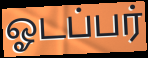
ஓடப்பர்